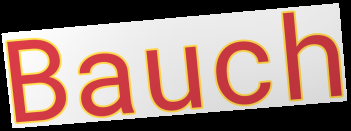
Bauch